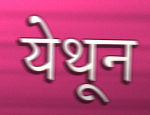
येथून